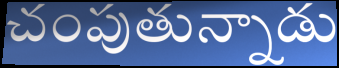
చంపుతున్నాడు